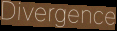
Divergence